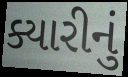
ક્યારીનું